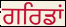
ਗਰਿਡਾਂ